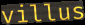
villus